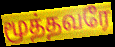
மூத்தவரே